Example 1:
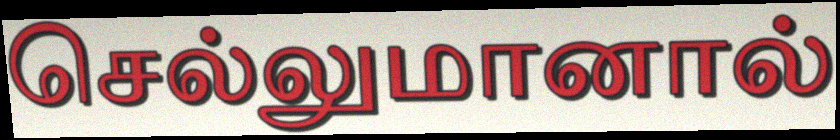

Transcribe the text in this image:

செல்லுமானால்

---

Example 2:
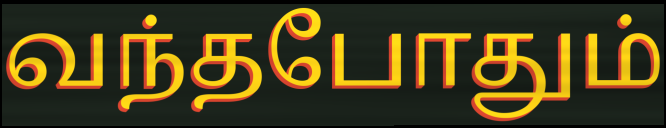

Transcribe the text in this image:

வந்தபோதும்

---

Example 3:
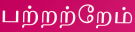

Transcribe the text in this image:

பற்றற்றேம்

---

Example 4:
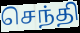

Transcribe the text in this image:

செந்தி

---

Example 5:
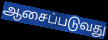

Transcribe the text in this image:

ஆசைப்படுவது